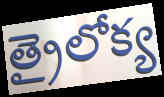
త్రైలోక్య